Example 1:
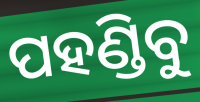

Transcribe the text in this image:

ପହଣ୍ଡିବୁ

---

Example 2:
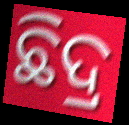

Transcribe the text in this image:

ଛିଦ୍ର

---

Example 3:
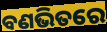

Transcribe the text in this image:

ବଣଭିତରେ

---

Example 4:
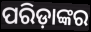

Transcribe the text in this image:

ପରିଡ଼ାଙ୍କର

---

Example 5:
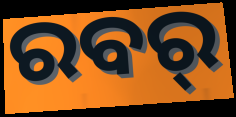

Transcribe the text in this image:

ରବର୍